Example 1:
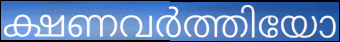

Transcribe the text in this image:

ക്ഷണവർത്തിയോ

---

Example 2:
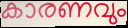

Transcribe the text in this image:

കാരണവും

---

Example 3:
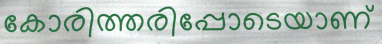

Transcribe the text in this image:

കോരിത്തരിപ്പോടെയാണ്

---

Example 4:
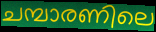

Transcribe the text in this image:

ചമ്പാരണിലെ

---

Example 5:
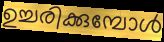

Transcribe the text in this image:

ഉച്ചരിക്കുമ്പോൾ